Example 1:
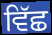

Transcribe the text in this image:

ਵਿੱਛ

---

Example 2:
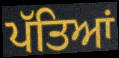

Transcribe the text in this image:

ਪੱਤਿਆਂ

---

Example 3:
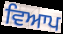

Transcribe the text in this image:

ਵਿਆਪ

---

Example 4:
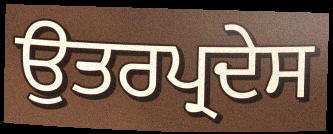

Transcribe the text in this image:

ਉਤਰਪ੍ਰਦੇਸ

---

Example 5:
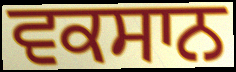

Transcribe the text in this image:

ਵਕਸਾਨ